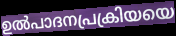
ഉൽപാദനപ്രക്രിയയെ